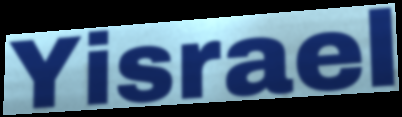
Yisrael